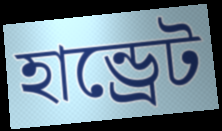
হান্ড্রেট